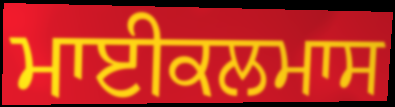
ਮਾਈਕਲਮਾਸ